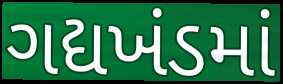
ગદ્યખંડમાં